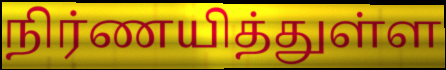
நிர்ணயித்துள்ள